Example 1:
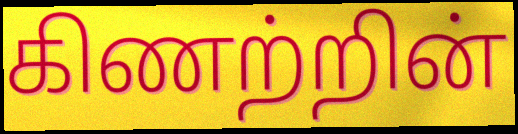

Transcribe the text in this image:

கிணற்றின்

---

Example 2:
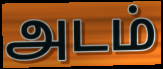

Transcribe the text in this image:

அடம்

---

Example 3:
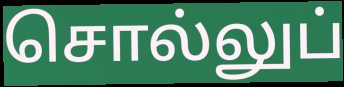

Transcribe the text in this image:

சொல்லுப்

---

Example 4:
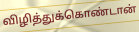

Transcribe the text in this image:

விழித்துக்கொண்டான்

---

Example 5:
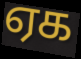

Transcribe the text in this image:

ஏக